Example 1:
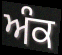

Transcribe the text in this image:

ਅੰਕ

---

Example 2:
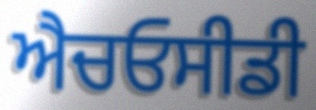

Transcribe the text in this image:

ਐਚਓਸੀਡੀ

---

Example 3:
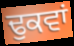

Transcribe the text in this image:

ਢੁਕਵਾਂ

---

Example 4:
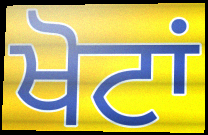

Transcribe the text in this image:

ਖੋਟਾਂ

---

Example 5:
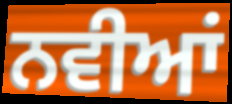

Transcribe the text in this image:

ਨਵੀਆਂ